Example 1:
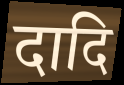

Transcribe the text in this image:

दादि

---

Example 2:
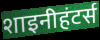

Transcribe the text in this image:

शाइनीहंटर्स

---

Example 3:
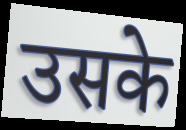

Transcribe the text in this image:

उसके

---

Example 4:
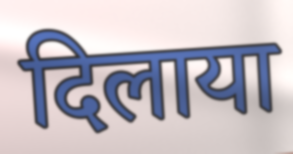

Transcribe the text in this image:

दिलाया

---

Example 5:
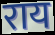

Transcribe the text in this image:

राय